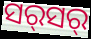
ସର୍‍ସର୍